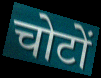
चोटों